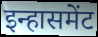
इन्हासमेंट